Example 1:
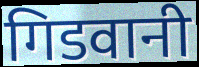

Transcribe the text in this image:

गिडवानी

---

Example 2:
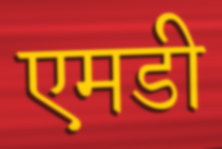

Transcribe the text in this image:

एमडी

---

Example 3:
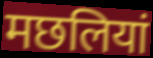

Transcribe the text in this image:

मछलियां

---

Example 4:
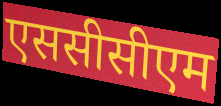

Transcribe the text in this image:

एससीसीएम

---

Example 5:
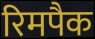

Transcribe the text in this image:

रिमपैक